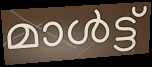
മാൾട്ട്